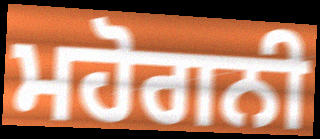
ਮਹੋਗਨੀ